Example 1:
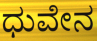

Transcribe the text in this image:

ಧುವೇನ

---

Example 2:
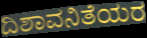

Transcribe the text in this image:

ದಿಶಾವನಿತೆಯರ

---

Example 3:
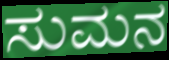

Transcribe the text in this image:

ಸುಮನ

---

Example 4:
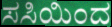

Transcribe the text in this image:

ಸಸಿಯಿಂದ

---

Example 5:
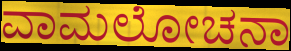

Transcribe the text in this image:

ವಾಮಲೋಚನಾ